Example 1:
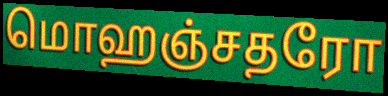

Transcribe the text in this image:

மொஹஞ்சதரோ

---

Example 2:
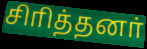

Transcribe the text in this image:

சிரித்தனர்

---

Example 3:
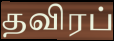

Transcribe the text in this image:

தவிரப்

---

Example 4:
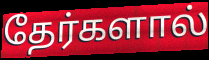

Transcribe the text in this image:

தேர்களால்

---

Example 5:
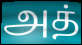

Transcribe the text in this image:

அத்